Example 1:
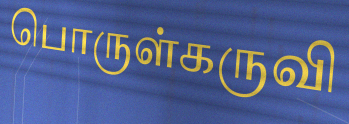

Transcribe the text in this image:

பொருள்கருவி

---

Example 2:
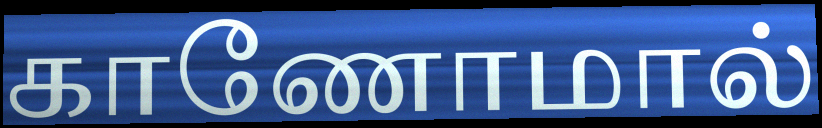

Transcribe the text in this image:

காணோமால்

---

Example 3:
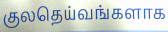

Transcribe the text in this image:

குலதெய்வங்களாக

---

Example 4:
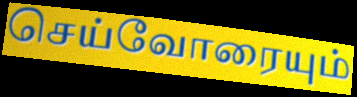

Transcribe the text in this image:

செய்வோரையும்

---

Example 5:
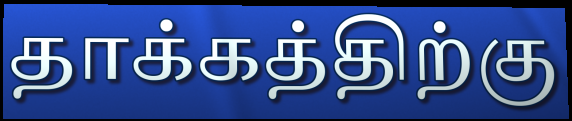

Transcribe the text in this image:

தாக்கத்திற்கு